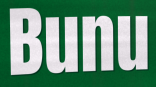
Bunu